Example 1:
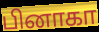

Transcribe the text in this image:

பினாகா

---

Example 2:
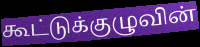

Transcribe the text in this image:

கூட்டுக்குழுவின்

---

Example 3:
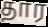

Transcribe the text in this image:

தார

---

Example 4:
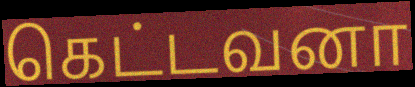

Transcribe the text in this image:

கெட்டவனா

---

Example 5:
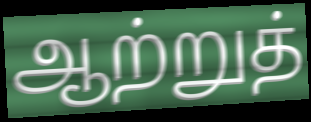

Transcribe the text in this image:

ஆற்றுத்